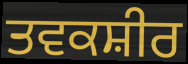
ਤਵਕਸ਼ੀਰ